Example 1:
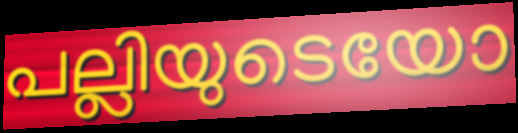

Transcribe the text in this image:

പല്ലിയുടെയോ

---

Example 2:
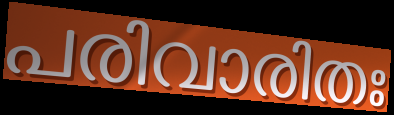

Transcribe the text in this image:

പരിവാരിതഃ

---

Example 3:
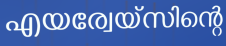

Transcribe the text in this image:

എയര്വേയ്സിന്റെ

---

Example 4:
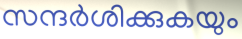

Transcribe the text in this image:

സന്ദർശിക്കുകയും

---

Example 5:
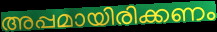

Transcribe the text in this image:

അപ്പമായിരിക്കണം